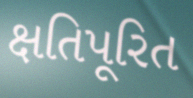
ક્ષતિપૂરિત